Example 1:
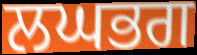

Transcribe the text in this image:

ਲਘਭਗ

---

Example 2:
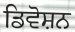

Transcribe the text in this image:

ਡਿਵੋਸ਼ਨ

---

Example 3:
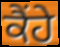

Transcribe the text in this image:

ਕੈਂਹੇ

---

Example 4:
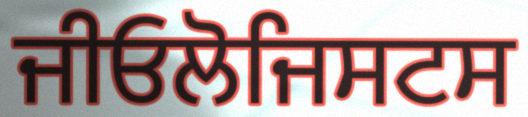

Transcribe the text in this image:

ਜੀਓਲੋਜਿਸਟਸ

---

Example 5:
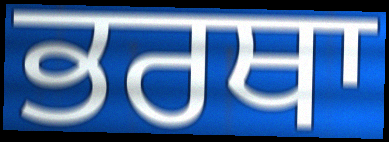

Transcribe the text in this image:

ਭਰਥਾ